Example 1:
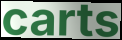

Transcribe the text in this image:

carts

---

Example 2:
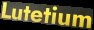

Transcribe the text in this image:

Lutetium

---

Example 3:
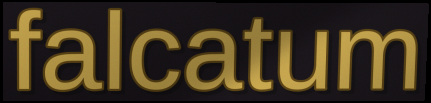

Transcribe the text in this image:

falcatum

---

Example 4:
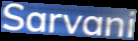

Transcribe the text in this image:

Sarvani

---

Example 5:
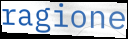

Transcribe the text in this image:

ragione